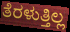
ತೆರಳುತ್ತಿಲ್ಲ